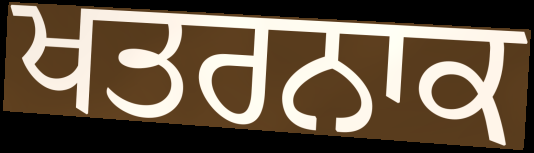
ਖਤਰਨਾਕ